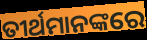
ତୀର୍ଥମାନଙ୍କରେ